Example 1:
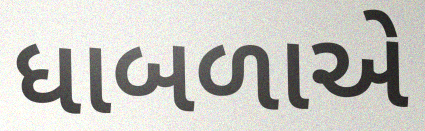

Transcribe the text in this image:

ધાબળાએ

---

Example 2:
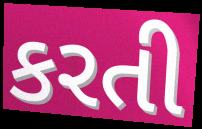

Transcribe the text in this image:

કરતી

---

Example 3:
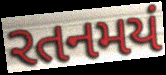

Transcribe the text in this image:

રતનમયં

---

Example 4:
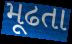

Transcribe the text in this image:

મૂઢતા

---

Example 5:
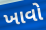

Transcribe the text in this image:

ખાવો